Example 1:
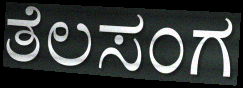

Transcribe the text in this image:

ತೆಲಸಂಗ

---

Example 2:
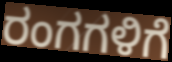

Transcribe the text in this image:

ರಂಗಗಳಿಗೆ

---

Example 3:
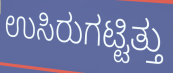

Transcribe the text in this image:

ಉಸಿರುಗಟ್ಟಿತ್ತು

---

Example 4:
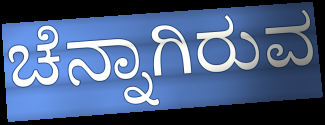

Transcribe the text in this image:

ಚೆನ್ನಾಗಿರುವ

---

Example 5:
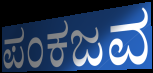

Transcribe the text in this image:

ಪಂಕಜವ